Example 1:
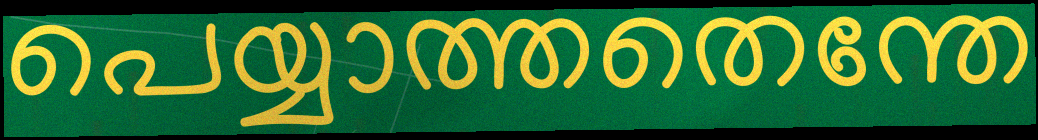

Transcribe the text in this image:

പെയ്യാത്തതെന്തേ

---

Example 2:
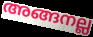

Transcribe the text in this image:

അങ്ങനല്ല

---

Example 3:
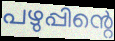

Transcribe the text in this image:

പഴുപ്പിന്റെ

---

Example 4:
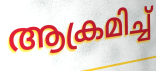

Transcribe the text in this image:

ആക്രമിച്ച്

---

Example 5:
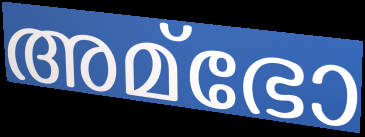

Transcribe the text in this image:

അമ്ഭോ